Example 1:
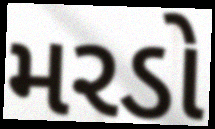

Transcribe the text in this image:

મરડો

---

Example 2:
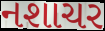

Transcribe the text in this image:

નશાચર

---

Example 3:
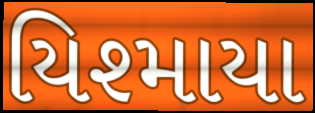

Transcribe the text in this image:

યિશ્માયા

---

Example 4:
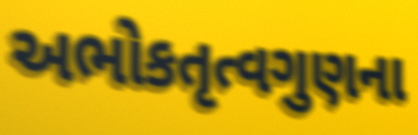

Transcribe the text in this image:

અભોકતૃત્વગુણના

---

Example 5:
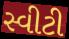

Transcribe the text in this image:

સ્વીટી